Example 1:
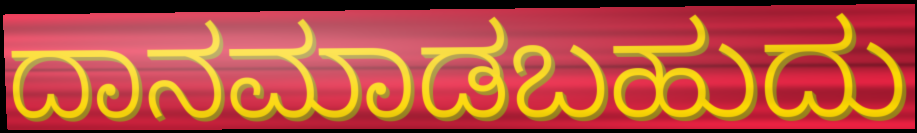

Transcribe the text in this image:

ದಾನಮಾಡಬಹುದು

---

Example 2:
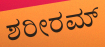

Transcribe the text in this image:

ಶರೀರಮ್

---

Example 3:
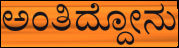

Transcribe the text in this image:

ಅಂತಿದ್ದೋನು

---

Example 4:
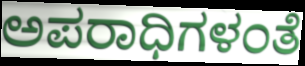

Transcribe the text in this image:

ಅಪರಾಧಿಗಳಂತೆ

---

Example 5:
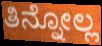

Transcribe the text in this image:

ತಿನ್ನೋಲ್ಲ